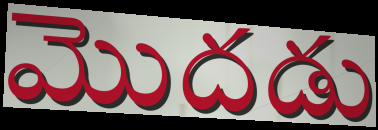
మొదడు